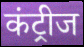
कंट्रीज